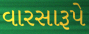
વારસારૂપે